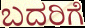
ಬದರಿಗೆ